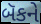
બૅકને